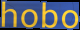
hobo